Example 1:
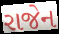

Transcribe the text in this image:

રાજેન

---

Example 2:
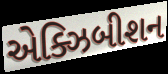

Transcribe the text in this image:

એક્ઝિબીશન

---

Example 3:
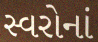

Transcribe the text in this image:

સ્વરોનાં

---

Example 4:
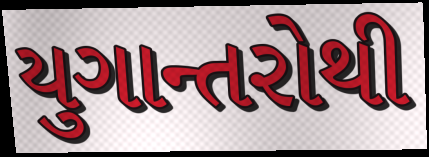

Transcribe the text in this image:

યુગાન્તરોથી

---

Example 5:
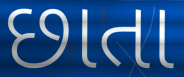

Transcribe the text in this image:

છાતા